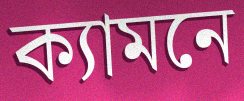
ক্যামনে